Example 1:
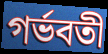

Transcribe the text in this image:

গর্ভবতী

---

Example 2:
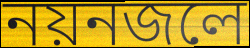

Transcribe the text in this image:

নয়নজলে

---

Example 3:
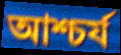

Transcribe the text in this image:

আশ্চর্য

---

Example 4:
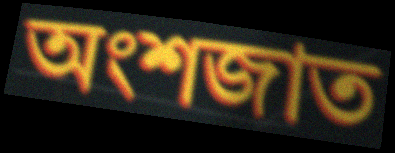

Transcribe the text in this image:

অংশজাত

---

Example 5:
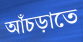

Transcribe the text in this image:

আঁচড়াতে